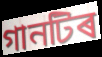
গানটিৰ